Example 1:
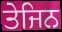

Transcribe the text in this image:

ਤੇਜਿਨ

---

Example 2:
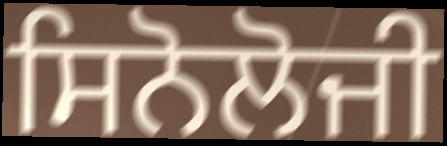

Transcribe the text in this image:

ਸਿਨੋਲੋਜੀ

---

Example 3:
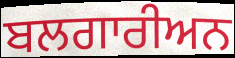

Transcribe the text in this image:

ਬਲਗਾਰੀਅਨ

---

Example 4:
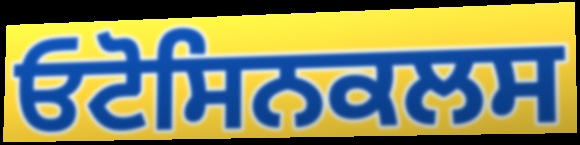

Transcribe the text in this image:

ਓਟੋਸਿਨਕਲਸ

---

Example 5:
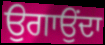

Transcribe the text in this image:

ਉਗਾਉਂਦਾ